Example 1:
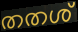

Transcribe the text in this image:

തതശ്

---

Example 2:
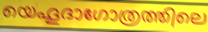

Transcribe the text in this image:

യെഹൂദാഗോത്രത്തിലെ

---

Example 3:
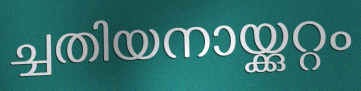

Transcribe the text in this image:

ച്ചതിയനായ്ക്കുറ്റം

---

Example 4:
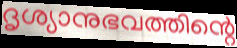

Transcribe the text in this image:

ദൃശ്യാനുഭവത്തിന്റെ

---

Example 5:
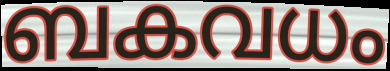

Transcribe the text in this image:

ബകവധം